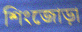
শিংজোড়া